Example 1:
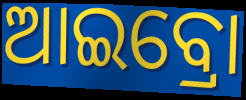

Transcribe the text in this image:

ଆଇବ୍ରୋ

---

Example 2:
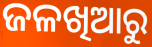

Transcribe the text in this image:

ଜଳଖିଆରୁ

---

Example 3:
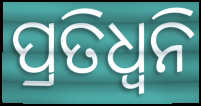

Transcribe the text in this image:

ପ୍ରତିଧ୍ବନି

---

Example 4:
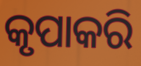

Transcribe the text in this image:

କୃପାକରି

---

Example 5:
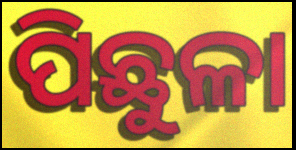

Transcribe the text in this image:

ପିଛୁଳା